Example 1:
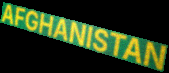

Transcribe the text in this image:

AFGHANISTAN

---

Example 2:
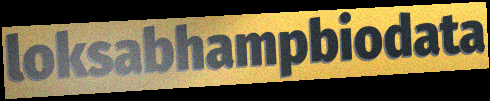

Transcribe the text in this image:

loksabhampbiodata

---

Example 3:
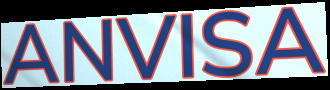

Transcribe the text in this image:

ANVISA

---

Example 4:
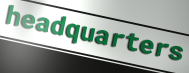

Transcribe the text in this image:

headquarters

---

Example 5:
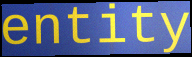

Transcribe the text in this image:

entity